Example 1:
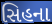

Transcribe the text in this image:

સિહના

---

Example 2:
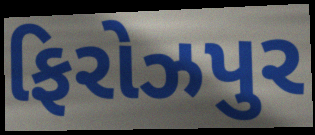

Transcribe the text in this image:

ફિરોઝપુર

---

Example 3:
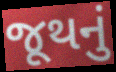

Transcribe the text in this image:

જૂથનું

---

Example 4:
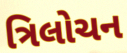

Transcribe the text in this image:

ત્રિલોચન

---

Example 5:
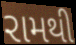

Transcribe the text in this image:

રામથી